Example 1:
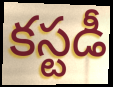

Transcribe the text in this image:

కస్టడీ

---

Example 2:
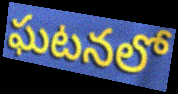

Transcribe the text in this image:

ఘటనలో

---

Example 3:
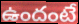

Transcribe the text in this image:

ఉందంటే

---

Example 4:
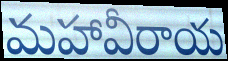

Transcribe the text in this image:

మహావీరాయ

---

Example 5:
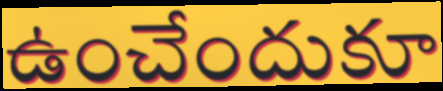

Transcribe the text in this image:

ఉంచేందుకూ